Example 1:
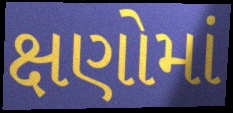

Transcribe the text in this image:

ક્ષણોમાં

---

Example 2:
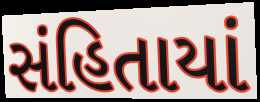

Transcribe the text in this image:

સંહિતાયાં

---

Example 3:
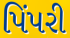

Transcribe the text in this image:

પિંપરી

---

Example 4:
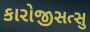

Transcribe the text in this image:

કારોજીસત્સુ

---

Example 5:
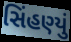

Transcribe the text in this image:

સિંહણ્યું